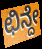
ಛಿನ್ದೇ